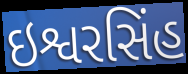
ઇશ્વરસિંહ